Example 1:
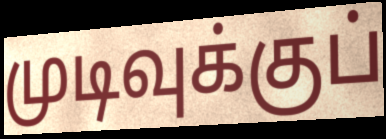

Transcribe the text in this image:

முடிவுக்குப்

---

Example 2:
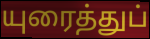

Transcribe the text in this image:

யுரைத்துப்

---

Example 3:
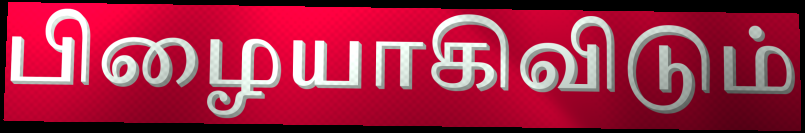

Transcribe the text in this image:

பிழையாகிவிடும்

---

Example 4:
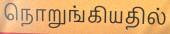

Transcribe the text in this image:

நொறுங்கியதில்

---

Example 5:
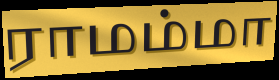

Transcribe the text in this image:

ராமம்மா